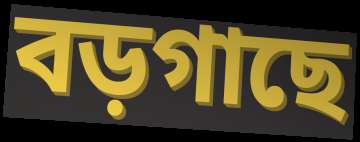
বড়গাছে